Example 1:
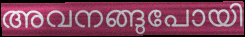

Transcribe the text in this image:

അവനങ്ങുപോയി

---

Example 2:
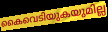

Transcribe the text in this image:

കൈവെടിയുകയുമില്ല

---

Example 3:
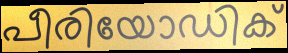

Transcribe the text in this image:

പീരിയോഡിക്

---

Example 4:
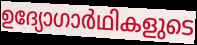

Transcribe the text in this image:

ഉദ്യോഗാർഥികളുടെ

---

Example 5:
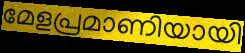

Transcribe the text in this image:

മേളപ്രമാണിയായി